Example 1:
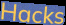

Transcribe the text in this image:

Hacks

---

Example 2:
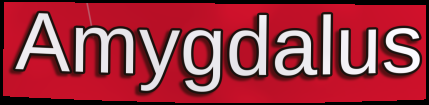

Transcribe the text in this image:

Amygdalus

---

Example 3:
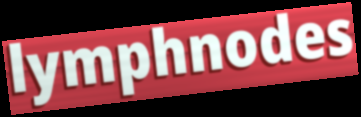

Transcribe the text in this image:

lymphnodes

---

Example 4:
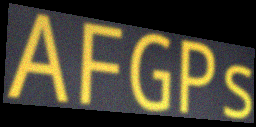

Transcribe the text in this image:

AFGPs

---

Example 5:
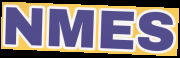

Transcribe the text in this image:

NMES